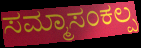
ಸಮ್ಮಾಸಂಕಲ್ಪ